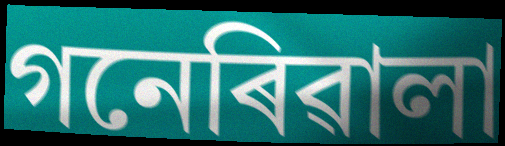
গনেৰিৱালা